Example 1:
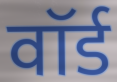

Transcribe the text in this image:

वॉर्ड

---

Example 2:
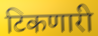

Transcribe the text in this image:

टिकणारी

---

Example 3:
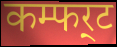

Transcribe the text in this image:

कम्फर्ट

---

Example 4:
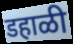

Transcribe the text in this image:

डहाळी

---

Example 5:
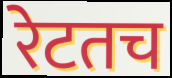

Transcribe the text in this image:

रेटतच